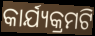
କାର୍ଯ୍ୟକ୍ରମଟି